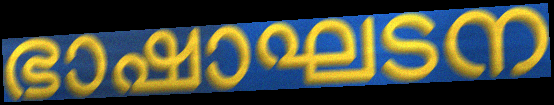
ഭാഷാഘടന